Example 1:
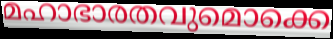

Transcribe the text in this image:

മഹാഭാരതവുമൊക്കെ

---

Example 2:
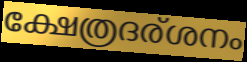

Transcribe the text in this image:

ക്ഷേത്രദര്ശനം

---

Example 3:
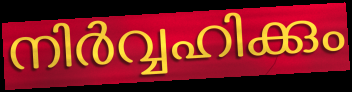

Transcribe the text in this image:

നിർവ്വഹിക്കും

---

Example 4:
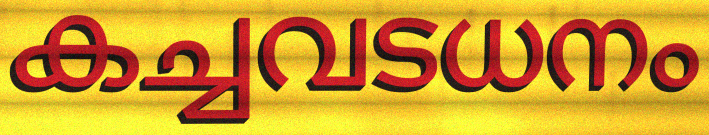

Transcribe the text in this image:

കച്ചവടധനം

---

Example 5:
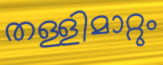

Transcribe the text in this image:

തള്ളിമാറ്റും